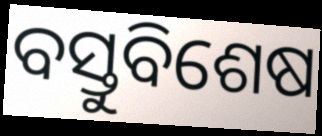
ବସ୍ତୁବିଶେଷ